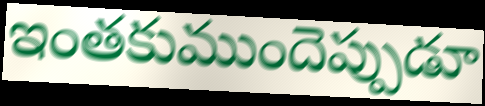
ఇంతకుముందెప్పుడూ